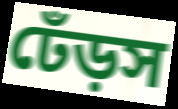
ঢেঁড়স